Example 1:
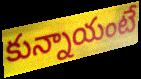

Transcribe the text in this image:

కున్నాయంటే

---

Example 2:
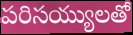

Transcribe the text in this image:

పరిసయ్యులతో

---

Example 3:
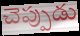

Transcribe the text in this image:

చెప్పుడు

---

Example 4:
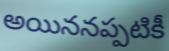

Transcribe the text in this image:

అయిననప్పటికీ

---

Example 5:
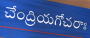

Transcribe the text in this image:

చేంద్రియగోచరాః